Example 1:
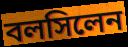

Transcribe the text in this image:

বলসিলেন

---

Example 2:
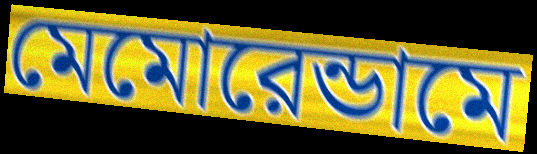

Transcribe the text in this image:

মেমোরেন্ডামে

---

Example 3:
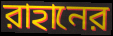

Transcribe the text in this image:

রাহানের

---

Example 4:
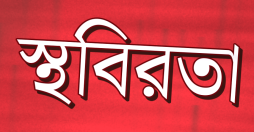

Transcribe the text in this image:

স্থবিরতা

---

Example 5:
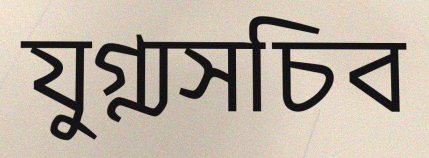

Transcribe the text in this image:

যুগ্মসচিব